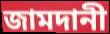
জামদানী